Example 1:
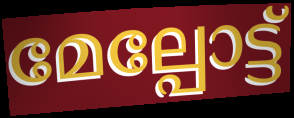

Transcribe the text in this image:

മേല്പോട്ട്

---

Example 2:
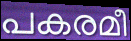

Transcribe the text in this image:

പകരമീ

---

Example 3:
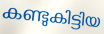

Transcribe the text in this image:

കണ്ടുകിട്ടിയ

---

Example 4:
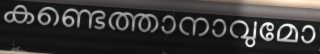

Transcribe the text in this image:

കണ്ടെത്താനാവുമോ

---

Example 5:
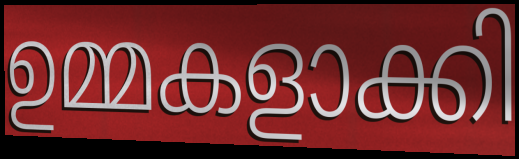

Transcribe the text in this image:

ഉമ്മകളാക്കി